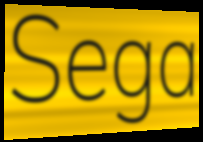
Sega